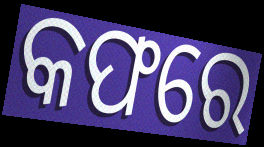
କଫରେ